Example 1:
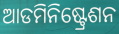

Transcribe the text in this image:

ଆଡମିନିଷ୍ଟ୍ରେଶନ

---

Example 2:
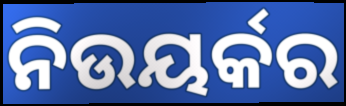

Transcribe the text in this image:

ନିଉୟର୍କର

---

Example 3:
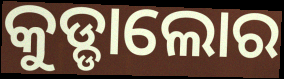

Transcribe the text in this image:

କୁଡ୍ଡାଲୋର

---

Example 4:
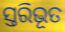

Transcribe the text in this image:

ସ୍ତରିଭୂତ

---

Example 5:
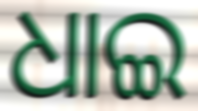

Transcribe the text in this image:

ଧାଇ